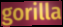
gorilla